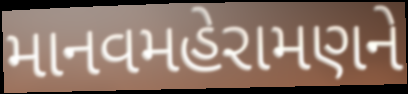
માનવમહેરામણને